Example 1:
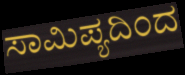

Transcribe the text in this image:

ಸಾಮಿಪ್ಯದಿಂದ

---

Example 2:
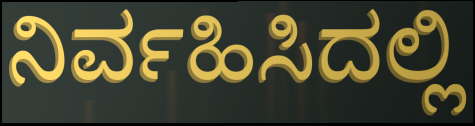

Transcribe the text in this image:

ನಿರ್ವಹಿಸಿದಲ್ಲಿ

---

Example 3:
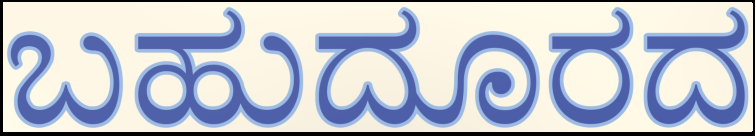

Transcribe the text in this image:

ಬಹುದೂರದ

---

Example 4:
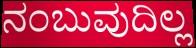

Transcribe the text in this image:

ನಂಬುವುದಿಲ್ಲ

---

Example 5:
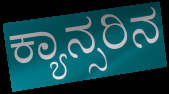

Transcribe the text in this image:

ಕ್ಯಾನ್ಸರಿನ